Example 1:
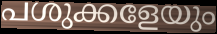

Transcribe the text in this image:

പശുക്കളേയും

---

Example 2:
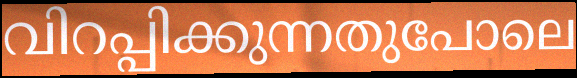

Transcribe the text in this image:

വിറപ്പിക്കുന്നതുപോലെ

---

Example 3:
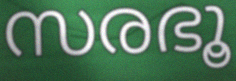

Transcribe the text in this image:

സരഭൂ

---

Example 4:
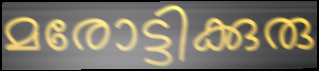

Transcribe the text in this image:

മരോട്ടിക്കുരു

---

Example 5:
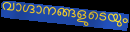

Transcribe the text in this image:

വാഗ്ദാനങ്ങളുടെയും